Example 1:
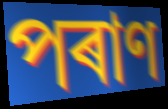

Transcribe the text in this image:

পৰাণ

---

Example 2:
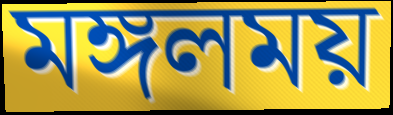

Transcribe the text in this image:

মঙ্গলময়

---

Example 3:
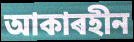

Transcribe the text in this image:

আকাৰহীন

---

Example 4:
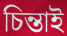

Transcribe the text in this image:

চিন্তাই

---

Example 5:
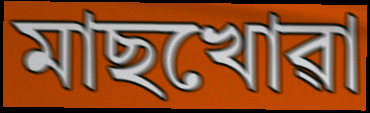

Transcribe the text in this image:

মাছখোৱা